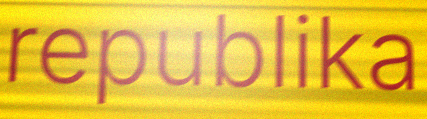
republika